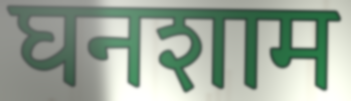
घनशाम